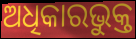
ଅଧିକାରଭୁକ୍ତ